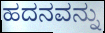
ಹದನವನ್ನು